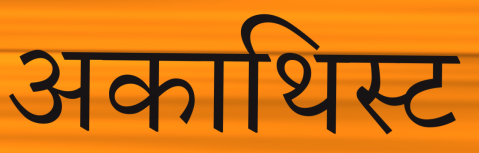
अकाथिस्ट